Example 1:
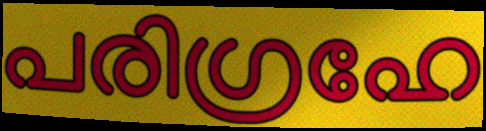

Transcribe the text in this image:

പരിഗ്രഹേ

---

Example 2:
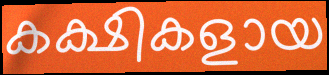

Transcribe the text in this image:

കക്ഷികളായ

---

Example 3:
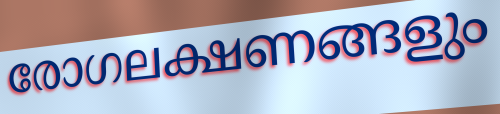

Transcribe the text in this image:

രോഗലക്ഷണങ്ങളും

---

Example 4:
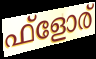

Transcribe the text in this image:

ഫ്ളോര്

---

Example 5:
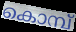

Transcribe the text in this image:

കൊമ്പ്